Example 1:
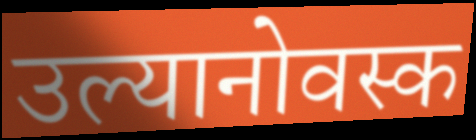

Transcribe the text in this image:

उल्यानोवस्क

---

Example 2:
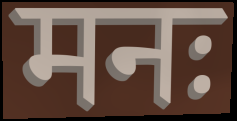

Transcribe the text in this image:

मनः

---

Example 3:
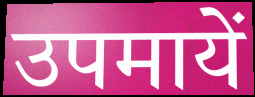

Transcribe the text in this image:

उपमायें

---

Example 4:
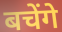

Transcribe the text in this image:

बचेंगे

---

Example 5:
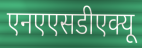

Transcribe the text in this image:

एनएएसडीएक्यू